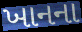
ખાનના